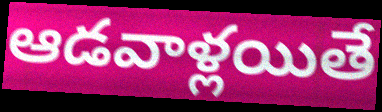
ఆడవాళ్లయితే